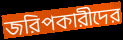
জরিপকারীদের